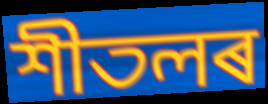
শীতলৰ